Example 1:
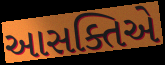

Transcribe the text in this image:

આસક્તિએ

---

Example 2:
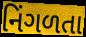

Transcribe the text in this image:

નિંગળતા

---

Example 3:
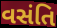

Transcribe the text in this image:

વસંતિ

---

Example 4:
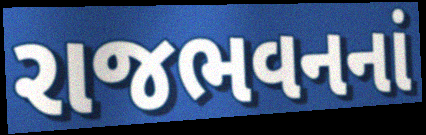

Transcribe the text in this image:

રાજભવનનાં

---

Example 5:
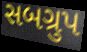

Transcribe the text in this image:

સબગ્રુપ